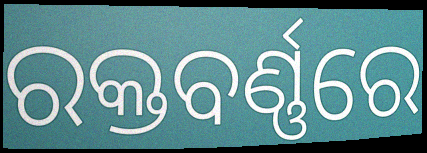
ରକ୍ତବର୍ଣ୍ଣରେ